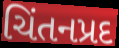
ચિંતનપ્રદ